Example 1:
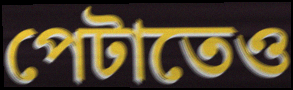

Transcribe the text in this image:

পেটাতেও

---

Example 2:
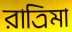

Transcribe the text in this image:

রাত্রিমা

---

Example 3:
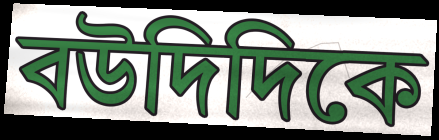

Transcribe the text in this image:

বউদিদিকে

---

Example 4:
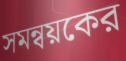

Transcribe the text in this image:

সমন্বয়কের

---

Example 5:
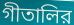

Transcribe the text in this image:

গীতালির